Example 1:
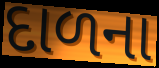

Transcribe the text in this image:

દાળના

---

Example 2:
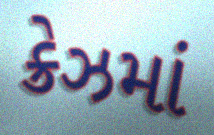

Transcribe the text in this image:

ક્રેઝમાં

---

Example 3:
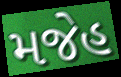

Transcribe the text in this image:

મજેહ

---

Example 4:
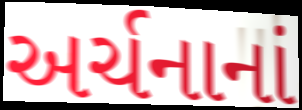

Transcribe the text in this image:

અર્ચનાનાં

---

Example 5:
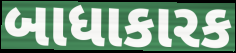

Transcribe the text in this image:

બાધાકારક